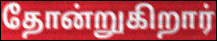
தோன்றுகிறார்